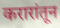
करारांतून